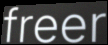
freer